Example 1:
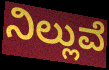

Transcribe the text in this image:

ನಿಲ್ಲುವೆ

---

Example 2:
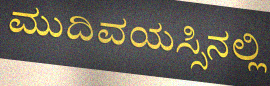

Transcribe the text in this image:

ಮುದಿವಯಸ್ಸಿನಲ್ಲಿ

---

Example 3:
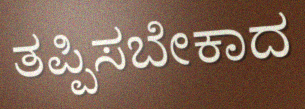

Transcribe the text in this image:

ತಪ್ಪಿಸಬೇಕಾದ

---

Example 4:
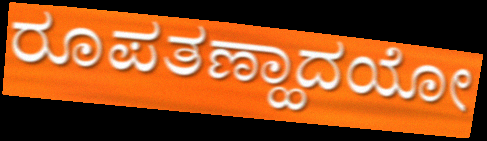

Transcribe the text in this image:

ರೂಪತಣ್ಹಾದಯೋ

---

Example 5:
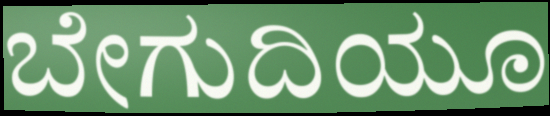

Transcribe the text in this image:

ಬೇಗುದಿಯೂ